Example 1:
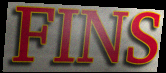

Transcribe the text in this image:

FINS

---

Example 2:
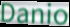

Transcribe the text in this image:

Danio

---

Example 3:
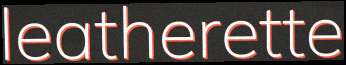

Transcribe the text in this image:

leatherette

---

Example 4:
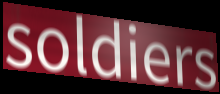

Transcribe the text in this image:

soldiers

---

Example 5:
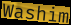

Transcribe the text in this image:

Washim